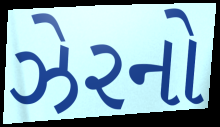
ઝેરનો